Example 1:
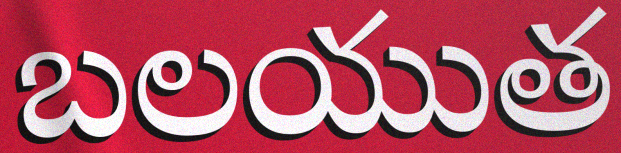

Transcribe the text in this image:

బలయుత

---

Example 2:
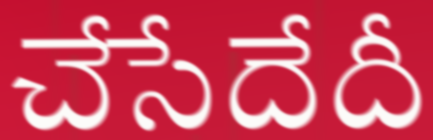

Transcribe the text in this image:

చేసేదేదీ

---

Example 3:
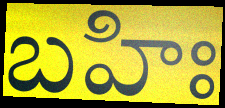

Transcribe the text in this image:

బహిః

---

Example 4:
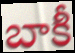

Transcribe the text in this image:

బాకీ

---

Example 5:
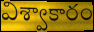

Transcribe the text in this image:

విశ్వాకారం